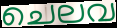
ചെലവ